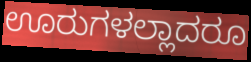
ಊರುಗಳಲ್ಲಾದರೂ